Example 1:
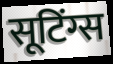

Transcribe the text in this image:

सूटिंग्स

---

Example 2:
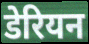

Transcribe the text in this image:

डेरियन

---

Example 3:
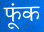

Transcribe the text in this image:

फूंक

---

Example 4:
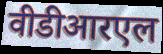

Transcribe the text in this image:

वीडीआरएल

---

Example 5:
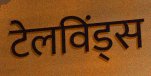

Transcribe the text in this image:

टेलविंड्स